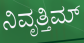
ನಿವೃತ್ತಿಮ್